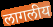
लागलीय